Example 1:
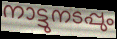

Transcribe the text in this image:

നാട്ടുനടപ്പും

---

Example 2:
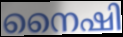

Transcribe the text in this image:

നൈഷി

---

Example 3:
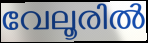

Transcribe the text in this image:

വേലൂരിൽ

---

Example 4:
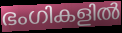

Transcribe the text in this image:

ഭംഗികളിൽ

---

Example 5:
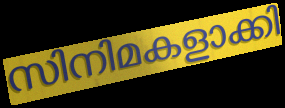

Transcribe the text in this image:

സിനിമകളാക്കി